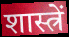
शास्त्रें